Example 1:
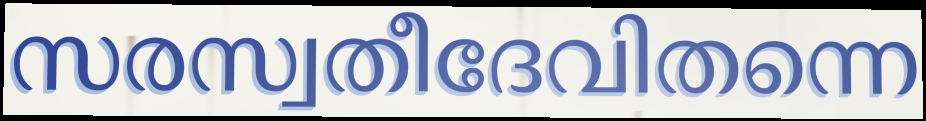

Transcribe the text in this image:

സരസ്വതീദേവിതന്നെ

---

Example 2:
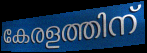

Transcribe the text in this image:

കേരളത്തിന്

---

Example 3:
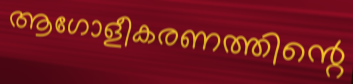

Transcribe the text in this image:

ആഗോളീകരണത്തിന്റെ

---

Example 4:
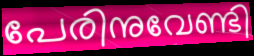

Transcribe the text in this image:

പേരിനുവേണ്ടി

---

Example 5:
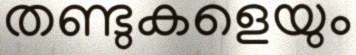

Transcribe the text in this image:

തണ്ടുകളെയും